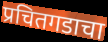
प्रचितगडाचा